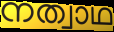
നത്വാഥ